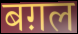
बग़ल